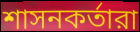
শাসনকর্তারা